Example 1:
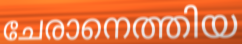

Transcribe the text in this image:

ചേരാനെത്തിയ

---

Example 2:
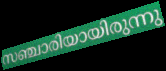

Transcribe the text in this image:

സഞ്ചാരിയായിരുന്നു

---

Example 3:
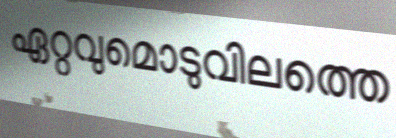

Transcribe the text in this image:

ഏറ്റവുമൊടുവിലത്തെ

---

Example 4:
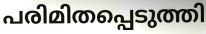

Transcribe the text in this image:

പരിമിതപ്പെടുത്തി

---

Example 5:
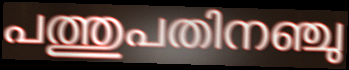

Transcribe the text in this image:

പത്തുപതിനഞ്ചു